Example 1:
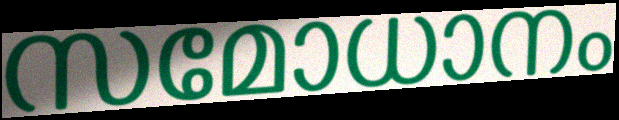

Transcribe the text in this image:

സമോധാനം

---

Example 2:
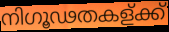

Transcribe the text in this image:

നിഗൂഢതകള്ക്ക്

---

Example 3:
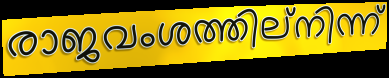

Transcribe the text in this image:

രാജവംശത്തില്നിന്ന്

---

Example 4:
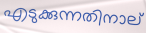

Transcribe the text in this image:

എടുക്കുന്നതിനാല്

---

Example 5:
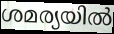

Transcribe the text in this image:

ശമര്യയിൽ